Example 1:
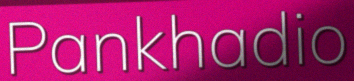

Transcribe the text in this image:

Pankhadio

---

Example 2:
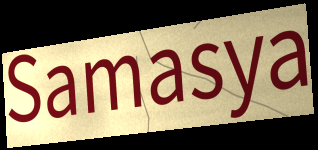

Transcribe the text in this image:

Samasya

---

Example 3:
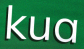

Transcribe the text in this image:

kua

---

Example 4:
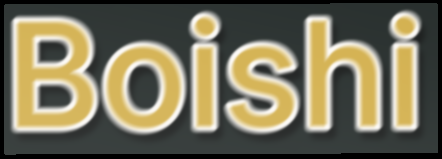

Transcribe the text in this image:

Boishi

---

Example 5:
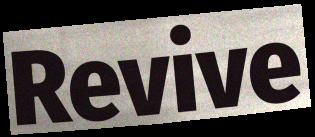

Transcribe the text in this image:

Revive